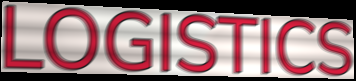
LOGISTICS